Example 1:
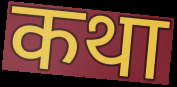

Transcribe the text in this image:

कथा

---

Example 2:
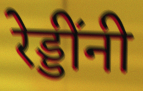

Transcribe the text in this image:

रेड्डींनी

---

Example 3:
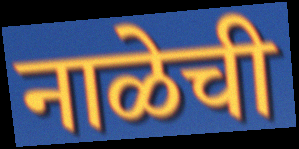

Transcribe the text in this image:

नाळेची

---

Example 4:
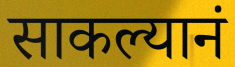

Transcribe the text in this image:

साकल्यानं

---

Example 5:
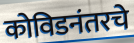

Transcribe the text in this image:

कोविडनंतरचे